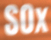
SOx